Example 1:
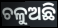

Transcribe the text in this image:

ଚଳୁଅଛି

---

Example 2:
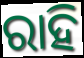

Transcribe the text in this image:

ରାହି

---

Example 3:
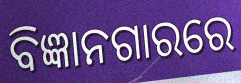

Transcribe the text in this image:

ବିଜ୍ଞାନଗାରରେ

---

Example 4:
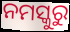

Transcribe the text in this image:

ନମସ୍କୁରୁ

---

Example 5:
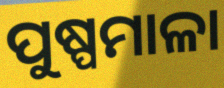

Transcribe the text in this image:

ପୁଷ୍ପମାଳା